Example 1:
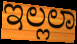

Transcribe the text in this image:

ಇಲ್ಲಲಾ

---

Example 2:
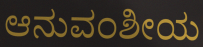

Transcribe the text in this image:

ಆನುವಂಶೀಯ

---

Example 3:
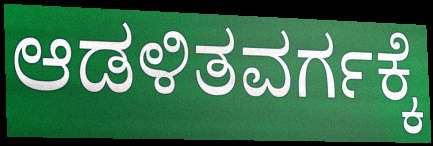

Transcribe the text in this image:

ಆಡಳಿತವರ್ಗಕ್ಕೆ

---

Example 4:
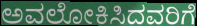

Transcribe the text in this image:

ಅವಲೋಕಿಸಿದವರಿಗೆ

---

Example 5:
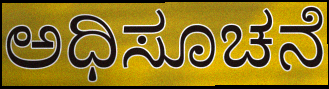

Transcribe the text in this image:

ಅಧಿಸೂಚನೆ